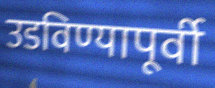
उडविण्यापूर्वी